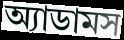
অ্যাডামস